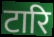
टारि